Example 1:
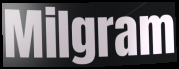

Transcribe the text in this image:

Milgram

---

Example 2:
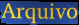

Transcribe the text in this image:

Arquivo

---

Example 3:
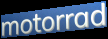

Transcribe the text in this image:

motorrad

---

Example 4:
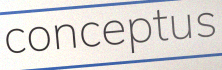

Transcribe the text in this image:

conceptus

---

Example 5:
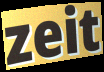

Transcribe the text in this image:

zeit